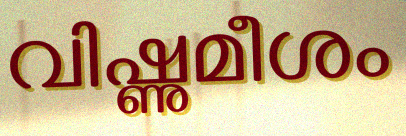
വിഷ്ണുമീശം